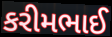
કરીમભાઈ